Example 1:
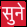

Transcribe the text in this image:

सुने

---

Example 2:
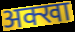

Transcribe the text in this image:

अक्खा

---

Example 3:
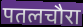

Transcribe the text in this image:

पतलचौरा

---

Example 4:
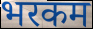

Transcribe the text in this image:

भरकम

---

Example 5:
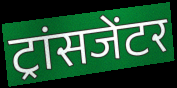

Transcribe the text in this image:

ट्रांसजेंटर